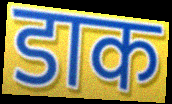
डाक